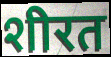
शीरत